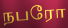
நபரோ